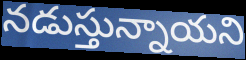
నడుస్తున్నాయని